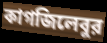
কাগজিলেবুর